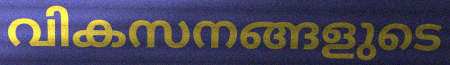
വികസനങ്ങളുടെ